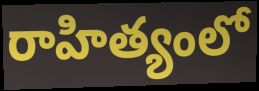
రాహిత్యంలో